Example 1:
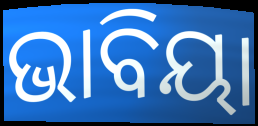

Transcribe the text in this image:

ଭାବିୟା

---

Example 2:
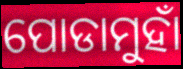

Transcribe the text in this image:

ପୋଡାମୁହାଁ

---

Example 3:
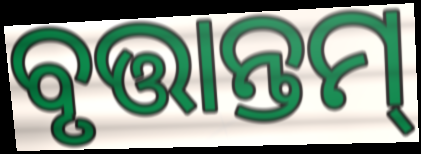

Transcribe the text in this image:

ବୃତ୍ତାନ୍ତମ୍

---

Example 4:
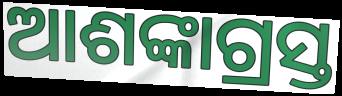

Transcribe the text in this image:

ଆଶଙ୍କାଗ୍ରସ୍ତ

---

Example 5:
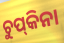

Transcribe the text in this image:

ଚୁପ୍‌କିନା